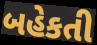
બહેકતી